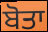
ਬੋਤਾ